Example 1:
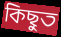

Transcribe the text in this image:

কিছুত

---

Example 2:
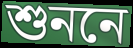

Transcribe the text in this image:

শুননে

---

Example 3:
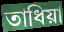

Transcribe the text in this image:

তাধিয়া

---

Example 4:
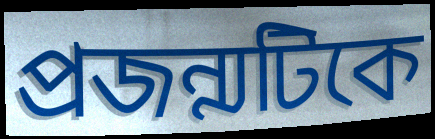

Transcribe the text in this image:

প্রজন্মটিকে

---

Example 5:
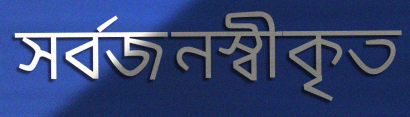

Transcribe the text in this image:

সর্বজনস্বীকৃত